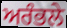
ਅਰੰਭਲੇ